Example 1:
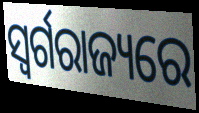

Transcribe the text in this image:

ସ୍ୱର୍ଗରାଜ୍ୟରେ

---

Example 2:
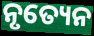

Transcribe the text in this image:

ନୃତ୍ୟେନ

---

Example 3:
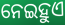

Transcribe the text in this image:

ନେଇହୁଏ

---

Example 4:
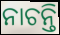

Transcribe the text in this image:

ନାଚନ୍ତି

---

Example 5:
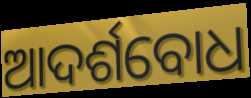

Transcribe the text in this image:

ଆଦର୍ଶବୋଧ